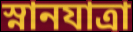
স্নানযাত্রা